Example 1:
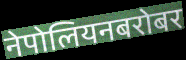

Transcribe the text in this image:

नेपोलियनबरोबर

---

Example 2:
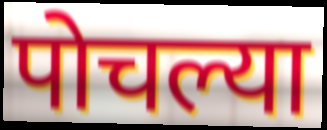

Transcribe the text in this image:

पोचल्या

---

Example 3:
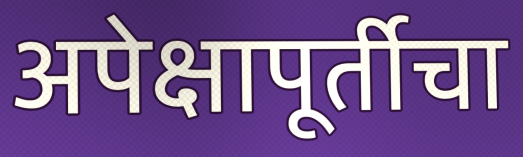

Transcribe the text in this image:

अपेक्षापूर्तीचा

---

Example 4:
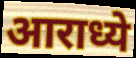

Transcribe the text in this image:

आराध्ये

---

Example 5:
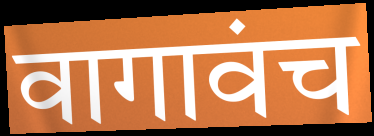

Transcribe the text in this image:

वागावंच